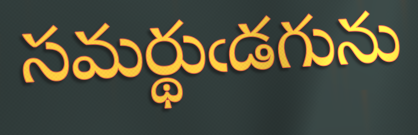
సమర్థుఁడగును